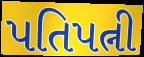
પતિપત્ની